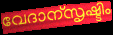
വേദാന്സൃഷ്ടിം